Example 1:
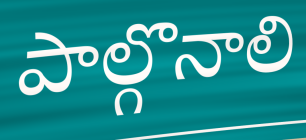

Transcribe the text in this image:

పాల్గొనాలి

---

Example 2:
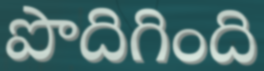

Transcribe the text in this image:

పొదిగింది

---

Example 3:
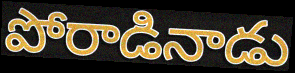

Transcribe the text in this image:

పోరాడినాడు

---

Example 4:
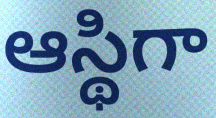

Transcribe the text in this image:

ఆస్థిగా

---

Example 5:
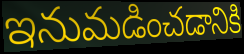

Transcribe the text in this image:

ఇనుమడించడానికి